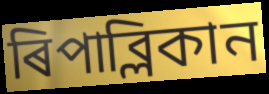
ৰিপাব্লিকান